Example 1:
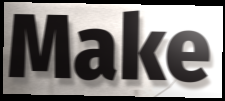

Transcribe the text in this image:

Make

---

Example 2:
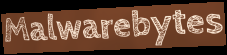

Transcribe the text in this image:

Malwarebytes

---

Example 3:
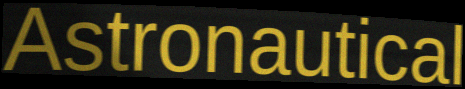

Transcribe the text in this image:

Astronautical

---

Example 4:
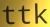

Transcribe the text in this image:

ttk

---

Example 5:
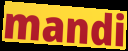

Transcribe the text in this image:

mandi